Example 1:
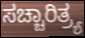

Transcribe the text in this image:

ಸಚ್ಚಾರಿತ್ರ್ಯ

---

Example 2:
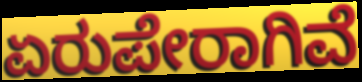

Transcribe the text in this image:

ಏರುಪೇರಾಗಿವೆ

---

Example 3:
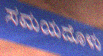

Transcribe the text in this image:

ಸಮಯದೊಳು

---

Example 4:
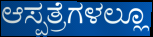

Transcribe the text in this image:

ಆಸ್ಪತ್ರೆಗಳಲ್ಲೂ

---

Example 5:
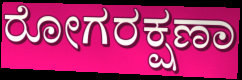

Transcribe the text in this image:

ರೋಗರಕ್ಷಣಾ